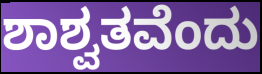
ಶಾಶ್ವತವೆಂದು